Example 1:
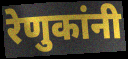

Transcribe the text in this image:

रेणुकांनी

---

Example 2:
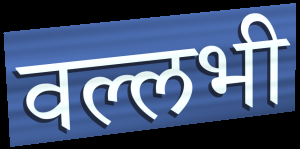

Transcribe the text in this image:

वल्लभी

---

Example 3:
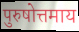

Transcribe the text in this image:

पुरुषोत्तमाय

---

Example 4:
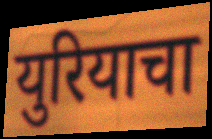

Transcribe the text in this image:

युरियाचा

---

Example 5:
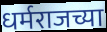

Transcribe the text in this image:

धर्मराजच्या